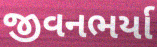
જીવનભર્યા